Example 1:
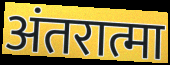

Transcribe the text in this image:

अंतरात्मा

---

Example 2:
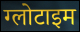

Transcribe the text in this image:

ग्लोटाइम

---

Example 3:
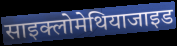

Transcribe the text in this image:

साइक्लोमेथियाजाइड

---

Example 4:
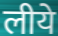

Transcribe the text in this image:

लीये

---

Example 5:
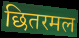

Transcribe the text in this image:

छितरमल